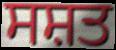
ਸਸ਼ਤ